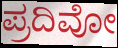
ಪ್ರದಿವೋ